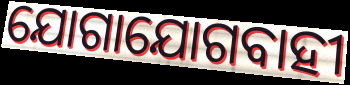
ଯୋଗାଯୋଗବାହୀ